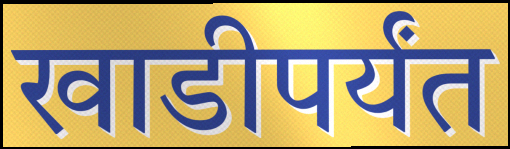
खाडीपर्यंत